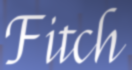
Fitch